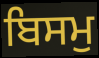
ਬਿਸਮੁ